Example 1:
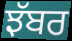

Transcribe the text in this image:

ਝੱਬਰ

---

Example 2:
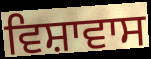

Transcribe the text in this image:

ਵਿਸ਼ਾਵਾਸ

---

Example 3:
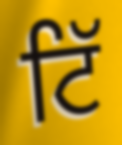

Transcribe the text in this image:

ਟਿੱ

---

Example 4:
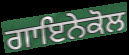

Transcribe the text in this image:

ਗਾਇਨੇਕੋਲ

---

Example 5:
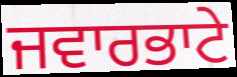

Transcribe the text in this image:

ਜਵਾਰਭਾਟੇ